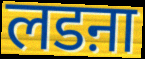
लडऩा